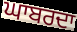
ਘਾਬਰਦਾ